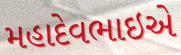
મહાદેવભાઇએ